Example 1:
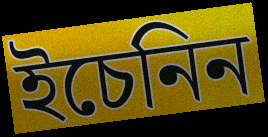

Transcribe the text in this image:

ইচেনিন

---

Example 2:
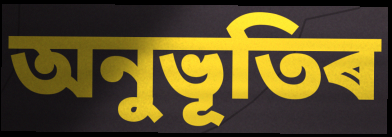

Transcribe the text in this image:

অনুভূতিৰ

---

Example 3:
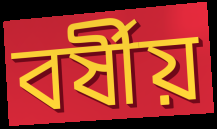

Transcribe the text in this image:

বৰ্ষীয়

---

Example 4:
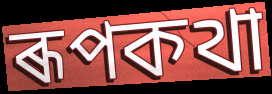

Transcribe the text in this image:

ৰূপকথা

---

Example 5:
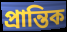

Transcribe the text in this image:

প্ৰান্তিক